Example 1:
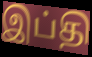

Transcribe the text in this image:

இப்தி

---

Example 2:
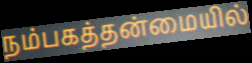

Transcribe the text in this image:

நம்பகத்தன்மையில்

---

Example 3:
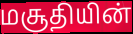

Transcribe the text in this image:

மசூதியின்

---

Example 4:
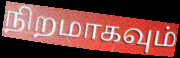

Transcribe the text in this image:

நிறமாகவும்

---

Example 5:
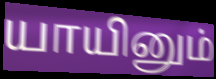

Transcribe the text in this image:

யாயினும்